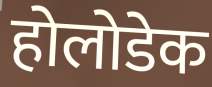
होलोडेक